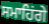
ਸਮਾਹਿਂਗੇ